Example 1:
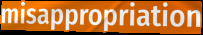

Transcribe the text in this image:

misappropriation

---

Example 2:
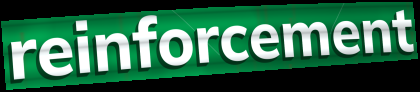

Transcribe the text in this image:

reinforcement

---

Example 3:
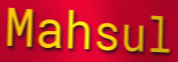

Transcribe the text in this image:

Mahsul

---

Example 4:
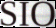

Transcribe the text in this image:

SIO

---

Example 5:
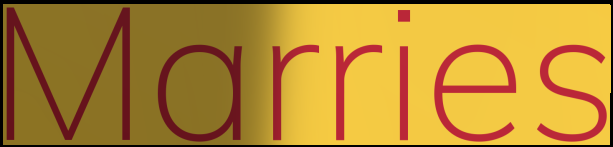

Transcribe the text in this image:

Marries